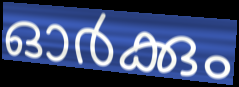
ഓർക്കും